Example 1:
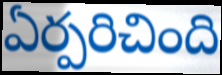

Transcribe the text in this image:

ఏర్పరిచింది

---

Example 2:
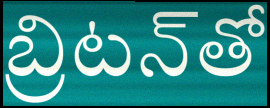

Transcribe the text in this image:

బ్రిటన్‌తో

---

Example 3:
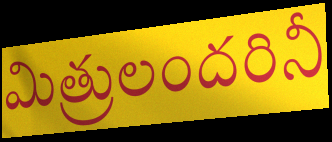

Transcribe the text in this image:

మిత్రులందరినీ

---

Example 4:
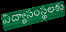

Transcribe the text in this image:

విద్యాసంస్థలకు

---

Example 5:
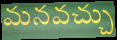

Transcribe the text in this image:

మనవచ్చు